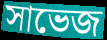
সাভেজ